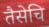
तैसेचि